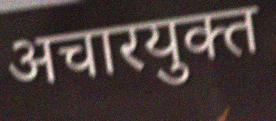
अचारयुक्त